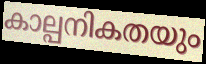
കാല്പനികതയും